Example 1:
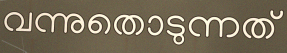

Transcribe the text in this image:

വന്നുതൊടുന്നത്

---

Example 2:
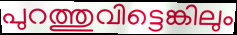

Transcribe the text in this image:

പുറത്തുവിട്ടെങ്കിലും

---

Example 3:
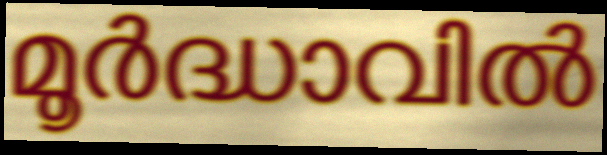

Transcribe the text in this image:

മൂർദ്ധാവിൽ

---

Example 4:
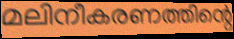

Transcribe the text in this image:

മലിനീകരണത്തിന്റെ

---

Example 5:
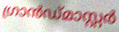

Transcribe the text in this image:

ഗ്രാൻഡ്മാസ്റ്റർ